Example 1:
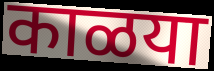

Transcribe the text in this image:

काळया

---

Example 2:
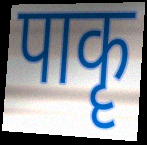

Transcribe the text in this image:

पाकॄ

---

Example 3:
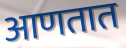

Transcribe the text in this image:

आणतात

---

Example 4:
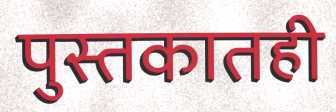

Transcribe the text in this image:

पुस्तकातही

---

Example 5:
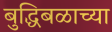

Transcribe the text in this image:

बुद्धिबळाच्या